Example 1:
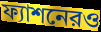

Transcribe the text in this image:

ফ্যাশনেরও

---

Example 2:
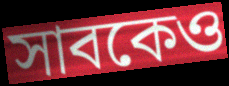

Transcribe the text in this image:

সাবকেও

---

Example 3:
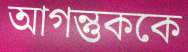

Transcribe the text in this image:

আগন্তুককে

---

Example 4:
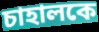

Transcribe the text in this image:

চাহালকে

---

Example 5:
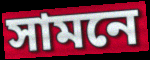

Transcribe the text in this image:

সামনে